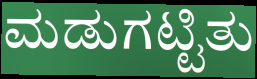
ಮಡುಗಟ್ಟಿತು